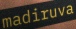
madiruva